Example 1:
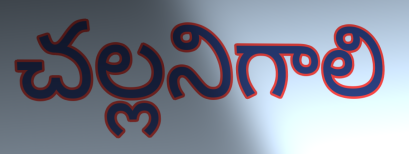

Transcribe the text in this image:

చల్లనిగాలి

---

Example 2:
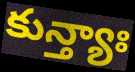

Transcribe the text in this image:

కున్త్యాః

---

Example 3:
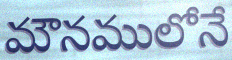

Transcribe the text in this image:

మౌనములోనే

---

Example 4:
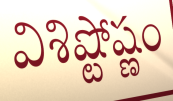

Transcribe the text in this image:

విశిష్టోష్ణం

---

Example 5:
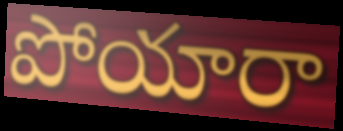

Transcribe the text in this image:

పోయారా